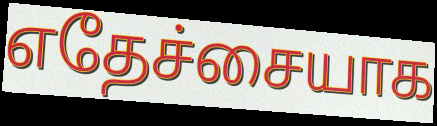
எதேச்சையாக